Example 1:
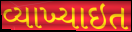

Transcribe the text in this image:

વ્યાખ્યાઇત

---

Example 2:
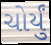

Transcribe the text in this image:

ચોર્યું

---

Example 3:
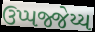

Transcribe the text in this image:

ઉપ્પજ્જેય્ય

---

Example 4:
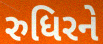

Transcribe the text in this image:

રુધિરને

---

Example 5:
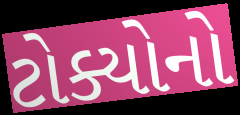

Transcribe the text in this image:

ટોક્યોનો